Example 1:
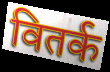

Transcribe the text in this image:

वितर्क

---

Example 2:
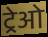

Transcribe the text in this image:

ट्रेओ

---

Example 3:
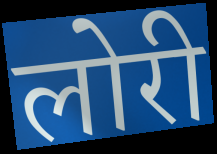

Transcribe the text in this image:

लोरी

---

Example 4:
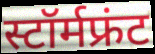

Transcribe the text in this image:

स्टॉर्मफ्रंट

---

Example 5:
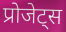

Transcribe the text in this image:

प्रोजेट्स